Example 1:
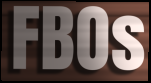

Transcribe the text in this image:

FBOs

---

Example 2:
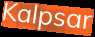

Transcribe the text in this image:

Kalpsar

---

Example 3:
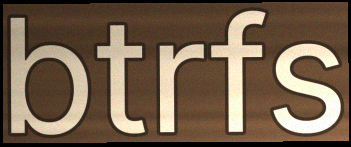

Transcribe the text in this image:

btrfs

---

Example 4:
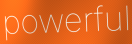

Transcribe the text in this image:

powerful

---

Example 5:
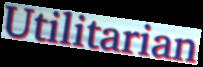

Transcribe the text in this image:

Utilitarian